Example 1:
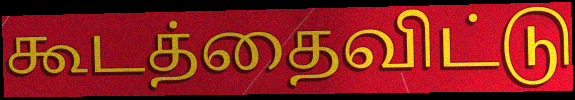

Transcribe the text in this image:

கூடத்தைவிட்டு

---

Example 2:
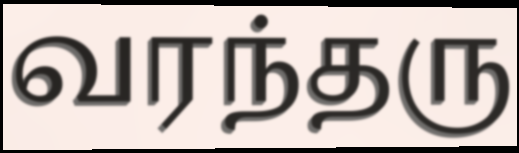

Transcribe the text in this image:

வரந்தரு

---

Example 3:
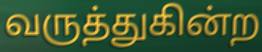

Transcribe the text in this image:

வருத்துகின்ற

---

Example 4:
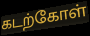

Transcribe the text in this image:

கடற்கோள்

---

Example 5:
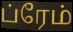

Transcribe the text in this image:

ப்ரேம்